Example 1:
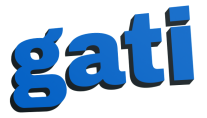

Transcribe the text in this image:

gati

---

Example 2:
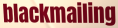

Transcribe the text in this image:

blackmailing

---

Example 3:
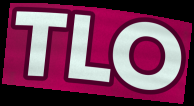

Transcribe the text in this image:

TLO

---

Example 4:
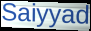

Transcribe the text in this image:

Saiyyad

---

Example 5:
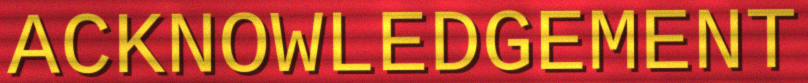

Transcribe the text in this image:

ACKNOWLEDGEMENT